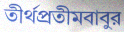
তীর্থপ্রতীমবাবুর